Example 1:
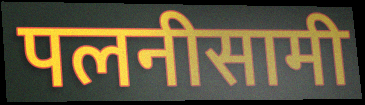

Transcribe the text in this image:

पलनीसामी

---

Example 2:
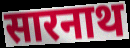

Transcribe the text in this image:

सारनाथ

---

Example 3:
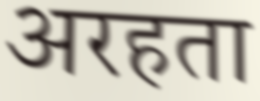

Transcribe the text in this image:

अरहता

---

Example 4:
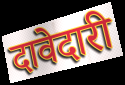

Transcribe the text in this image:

दावेदारी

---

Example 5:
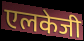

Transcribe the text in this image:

एलकेजी